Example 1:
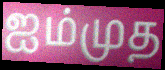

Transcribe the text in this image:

ஐம்முத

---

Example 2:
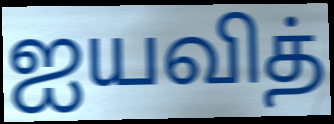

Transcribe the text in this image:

ஐயவித்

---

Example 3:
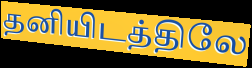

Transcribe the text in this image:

தனியிடத்திலே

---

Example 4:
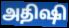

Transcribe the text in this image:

அதிஷி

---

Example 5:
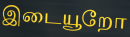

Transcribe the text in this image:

இடையூறோ